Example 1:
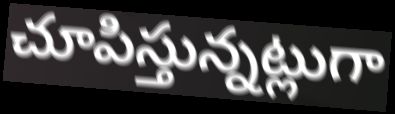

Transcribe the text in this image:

చూపిస్తున్నట్లుగా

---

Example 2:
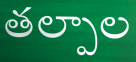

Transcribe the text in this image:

తల్పాల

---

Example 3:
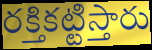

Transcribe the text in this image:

రక్తికట్టిస్తారు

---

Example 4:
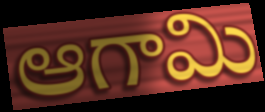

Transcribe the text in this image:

ఆగామి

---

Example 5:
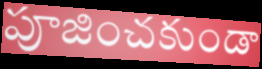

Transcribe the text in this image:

పూజించకుండా